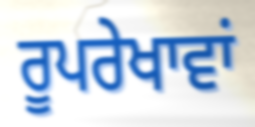
ਰੂਪਰੇਖਾਵਾਂ